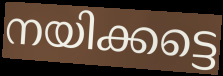
നയിക്കട്ടെ